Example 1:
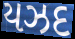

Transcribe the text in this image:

યઝદ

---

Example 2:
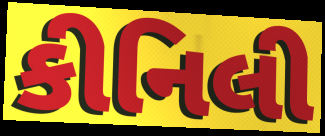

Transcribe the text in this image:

કીનિલી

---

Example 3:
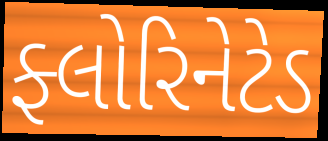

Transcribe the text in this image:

ફ્લોરિનેટેડ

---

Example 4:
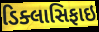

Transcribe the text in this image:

ડિક્લાસિફાઇ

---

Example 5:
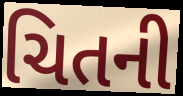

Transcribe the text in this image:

ચિતની